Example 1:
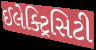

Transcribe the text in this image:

ઈલેક્ટ્રિસિટી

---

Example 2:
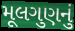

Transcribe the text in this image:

મૂલગુણનું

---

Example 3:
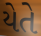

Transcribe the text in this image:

યેતે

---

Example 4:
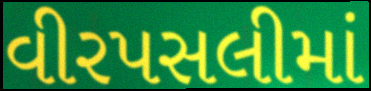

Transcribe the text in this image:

વીરપસલીમાં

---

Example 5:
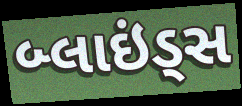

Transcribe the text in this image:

બ્લાઇંડ્સ